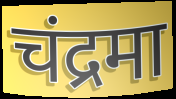
चंद्रमा